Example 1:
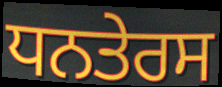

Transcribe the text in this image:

ਧਨਤੇਰਸ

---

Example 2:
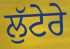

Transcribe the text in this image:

ਲੁੱਟੇਰੇ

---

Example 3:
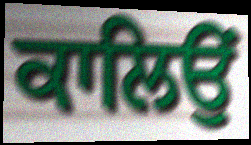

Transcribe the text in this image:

ਕਾਲਿਉਂ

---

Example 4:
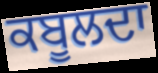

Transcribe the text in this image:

ਕਬੂਲਦਾ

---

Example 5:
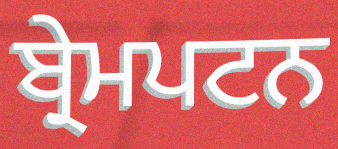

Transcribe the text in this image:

ਬ੍ਰੇਮਪਟਨ